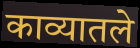
काव्यातले